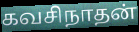
கவசிநாதன்